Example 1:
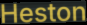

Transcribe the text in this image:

Heston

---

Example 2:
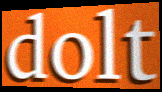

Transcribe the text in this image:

dolt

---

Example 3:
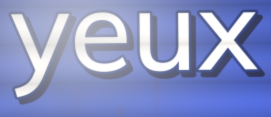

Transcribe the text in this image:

yeux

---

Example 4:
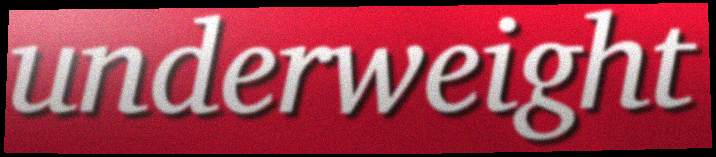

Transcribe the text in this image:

underweight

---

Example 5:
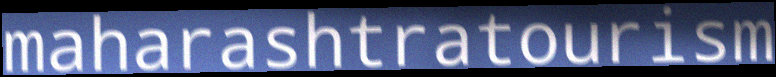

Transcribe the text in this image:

maharashtratourism